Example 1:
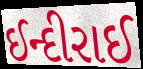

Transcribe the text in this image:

ઈન્દીરાઈ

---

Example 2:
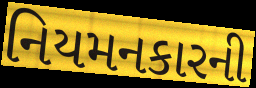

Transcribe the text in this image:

નિયમનકારની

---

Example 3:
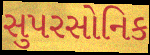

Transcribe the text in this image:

સુપરસોનિક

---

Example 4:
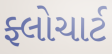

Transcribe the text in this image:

ફ્લોચાર્ટ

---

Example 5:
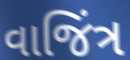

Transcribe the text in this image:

વાજિંત્ર